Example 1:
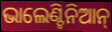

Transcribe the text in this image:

ଭାଲେଣ୍ଟିନିଆନ୍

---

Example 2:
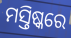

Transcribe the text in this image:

ମସ୍ତିଷ୍କରେ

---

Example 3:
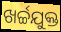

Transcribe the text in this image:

ଖର୍ଚ୍ଚଯୁକ୍ତ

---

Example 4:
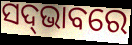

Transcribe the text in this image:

ସଦ୍‌ଭାବରେ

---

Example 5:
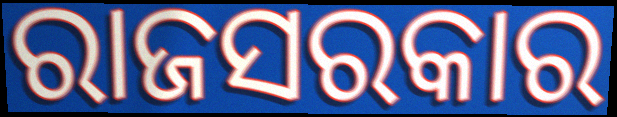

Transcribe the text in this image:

ରାଜସରକାର